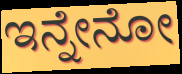
ಇನ್ನೇನೋ